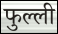
फुल्ली